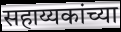
सहाय्यकांच्या